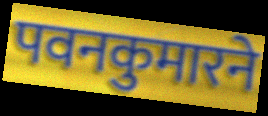
पवनकुमारने